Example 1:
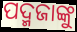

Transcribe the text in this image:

ପଦ୍ମଜାଙ୍କୁ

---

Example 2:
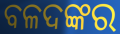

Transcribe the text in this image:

ବଳଦଙ୍କର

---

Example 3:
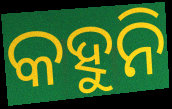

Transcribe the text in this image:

କହୁନି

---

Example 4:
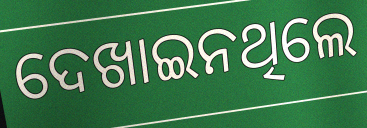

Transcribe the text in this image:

ଦେଖାଇନଥିଲେ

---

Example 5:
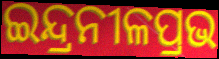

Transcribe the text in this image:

ଇନ୍ଦ୍ରନୀଳପ୍ରଭ